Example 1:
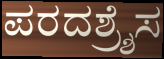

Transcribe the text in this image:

ಪರದಶ್ರ್ಶೆಸ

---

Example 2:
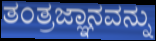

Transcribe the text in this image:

ತಂತ್ರಜ್ಞಾನವನ್ನು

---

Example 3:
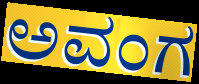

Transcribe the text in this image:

ಅವಂಗ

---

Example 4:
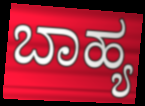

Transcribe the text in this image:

ಬಾಹ್ಯ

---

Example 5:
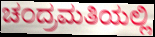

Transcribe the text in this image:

ಚಂದ್ರಮತಿಯಲ್ಲಿ